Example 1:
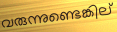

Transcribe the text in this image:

വരുന്നുണ്ടെങ്കില്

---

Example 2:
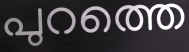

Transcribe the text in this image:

പുറത്തെ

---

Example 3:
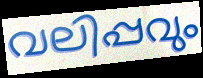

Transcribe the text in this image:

വലിപ്പവും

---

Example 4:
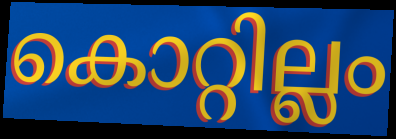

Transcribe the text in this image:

കൊറ്റില്ലം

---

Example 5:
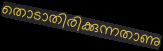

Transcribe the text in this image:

തൊടാതിരിക്കുന്നതാണു